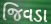
જિવડા